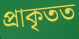
প্ৰাকৃতত